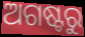
ଅଗଷ୍ଟରୁ